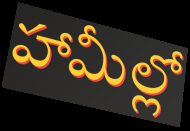
హామీల్లో